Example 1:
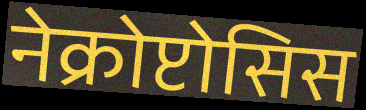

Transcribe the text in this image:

नेक्रोप्टोसिस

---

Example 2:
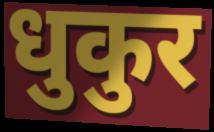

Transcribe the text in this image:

धुकुर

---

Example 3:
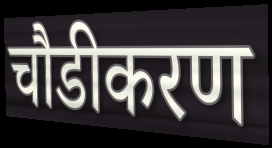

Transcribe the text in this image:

चौडीकरण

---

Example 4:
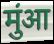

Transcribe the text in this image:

मुंआ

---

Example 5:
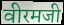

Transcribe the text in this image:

वीरमजी